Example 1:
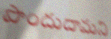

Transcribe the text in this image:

పొందుదామని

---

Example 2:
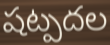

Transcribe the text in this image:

షట్పదల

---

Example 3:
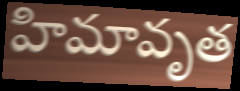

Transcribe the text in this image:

హిమావృత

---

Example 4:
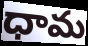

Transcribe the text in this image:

ధామ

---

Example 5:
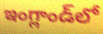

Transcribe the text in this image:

ఇంగ్లాండ్‌లో